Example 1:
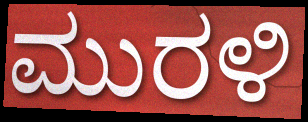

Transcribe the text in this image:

ಮುರಳಿ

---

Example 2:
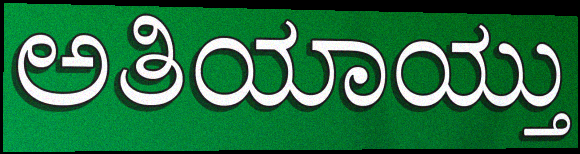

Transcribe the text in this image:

ಅತಿಯಾಯ್ತು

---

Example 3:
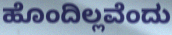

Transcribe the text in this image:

ಹೊಂದಿಲ್ಲವೆಂದು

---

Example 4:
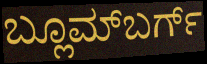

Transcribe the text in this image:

ಬ್ಲೂಮ್‌ಬರ್ಗ್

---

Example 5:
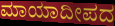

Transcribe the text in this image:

ಮಾಯಾದೀಪದ